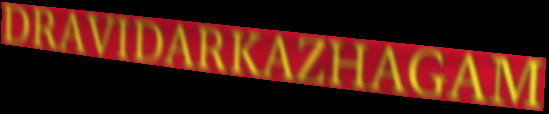
DRAVIDARKAZHAGAM